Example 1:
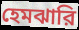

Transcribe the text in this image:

হেমঝারি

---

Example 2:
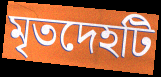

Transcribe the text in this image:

মৃতদেহটি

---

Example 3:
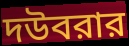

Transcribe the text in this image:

দউবরার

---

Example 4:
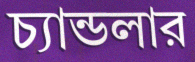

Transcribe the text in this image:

চ্যান্ডলার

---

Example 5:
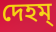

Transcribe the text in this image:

দেহম্